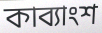
কাব্যাংশ